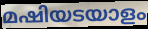
മഷിയടയാളം